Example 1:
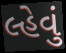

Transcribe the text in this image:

લ્હેવું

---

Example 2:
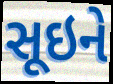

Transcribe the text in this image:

સૂઇને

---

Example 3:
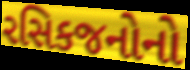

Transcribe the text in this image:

રસિકજનોનો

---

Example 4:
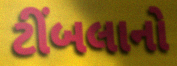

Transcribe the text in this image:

ટીંબલાનો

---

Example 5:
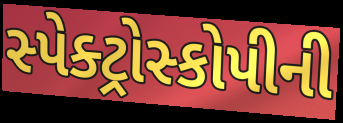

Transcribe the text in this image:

સ્પેક્ટ્રોસ્કોપીની